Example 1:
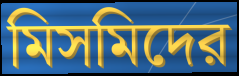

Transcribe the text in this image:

মিসমিদের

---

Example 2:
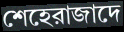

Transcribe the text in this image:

শেহেরাজাদে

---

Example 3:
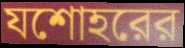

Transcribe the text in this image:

যশোহরের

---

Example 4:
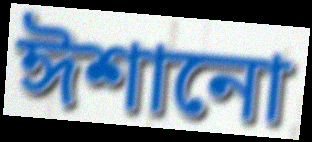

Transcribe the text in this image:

ঈশানো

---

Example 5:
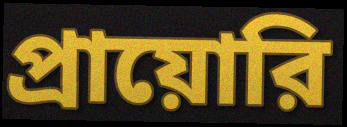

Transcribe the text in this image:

প্রায়োরি